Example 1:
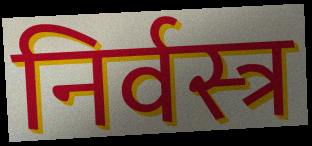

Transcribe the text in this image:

निर्वस्‍त्र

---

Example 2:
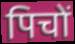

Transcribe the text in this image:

पिचों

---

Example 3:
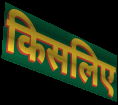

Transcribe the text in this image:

किसलिए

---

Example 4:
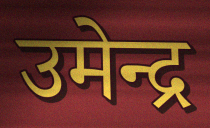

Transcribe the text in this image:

उमेन्द्र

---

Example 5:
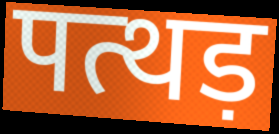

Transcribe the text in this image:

पत्थड़